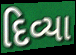
દિવ્યા